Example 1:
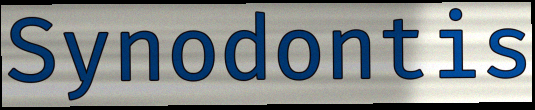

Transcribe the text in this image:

Synodontis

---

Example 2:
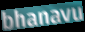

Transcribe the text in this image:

bhanavu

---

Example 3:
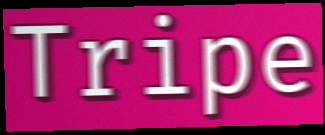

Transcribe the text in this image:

Tripe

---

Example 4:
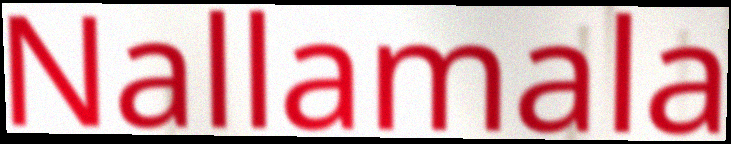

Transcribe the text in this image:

Nallamala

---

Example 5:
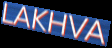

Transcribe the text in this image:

LAKHVA